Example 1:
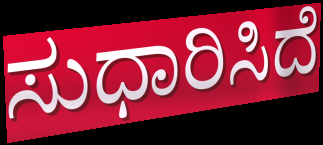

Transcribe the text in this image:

ಸುಧಾರಿಸಿದೆ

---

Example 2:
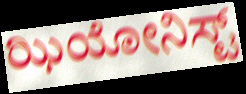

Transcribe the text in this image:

ಝಿಯೋನಿಸ್ಟ್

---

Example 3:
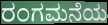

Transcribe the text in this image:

ರಂಗಮನೆಯ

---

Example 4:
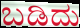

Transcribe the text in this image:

ಬಡಿದು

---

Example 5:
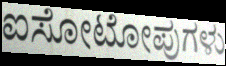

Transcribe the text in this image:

ಐಸೋಟೋಪುಗಳು